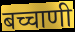
बच्चाणी